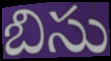
బిసు